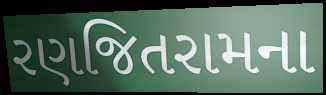
રણજિતરામના